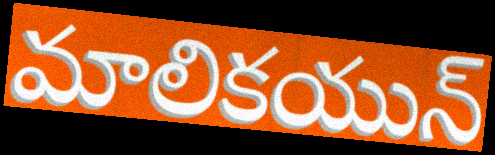
మాలికయున్